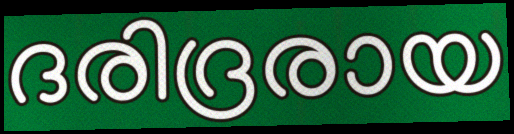
ദരിദ്രരായ